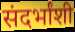
संदर्भांशी